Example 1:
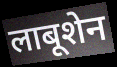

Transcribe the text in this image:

लाबूशेन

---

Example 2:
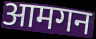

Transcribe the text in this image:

आमगन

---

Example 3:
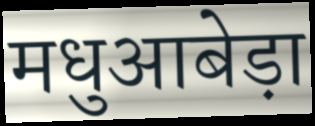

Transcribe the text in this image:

मधुआबेड़ा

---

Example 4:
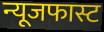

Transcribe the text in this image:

न्यूजफास्ट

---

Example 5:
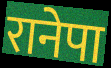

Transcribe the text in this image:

रानेपा